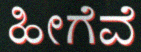
ಹೀಗೆವೆ